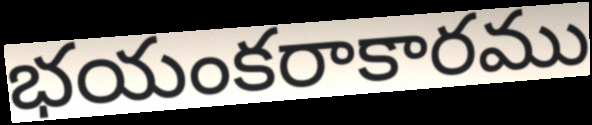
భయంకరాకారము